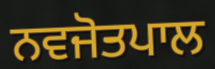
ਨਵਜੋਤਪਾਲ